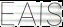
EAIS